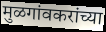
मुळगांवकरांच्या